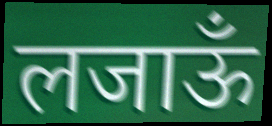
लजाऊँ